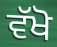
ਵੱਖੋ